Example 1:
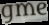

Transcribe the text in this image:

gme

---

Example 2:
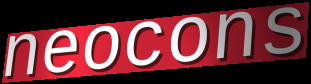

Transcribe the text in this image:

neocons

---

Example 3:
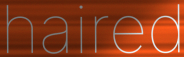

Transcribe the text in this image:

haired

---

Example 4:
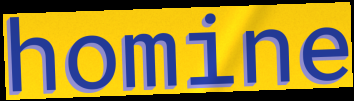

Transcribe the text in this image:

homine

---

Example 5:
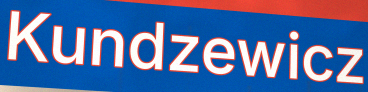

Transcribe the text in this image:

Kundzewicz